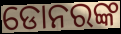
ଡୋନରଙ୍କ